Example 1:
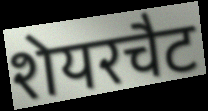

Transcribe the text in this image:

शेयरचैट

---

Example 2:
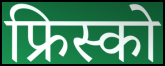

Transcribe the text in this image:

फ्रिस्को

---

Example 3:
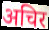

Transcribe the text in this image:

अचिर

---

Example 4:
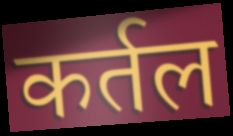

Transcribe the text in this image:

कर्तल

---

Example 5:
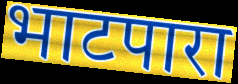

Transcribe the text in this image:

भाटपारा